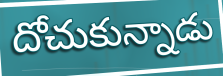
దోచుకున్నాడు